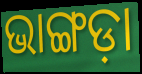
ଭାଙ୍ଗଡ଼ା